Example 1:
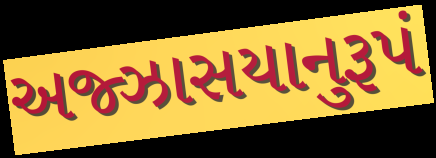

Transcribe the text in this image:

અજ્ઝાસયાનુરૂપં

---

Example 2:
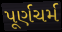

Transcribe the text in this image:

પૂર્ણચર્મ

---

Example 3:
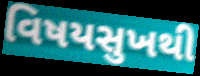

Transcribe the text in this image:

વિષયસુખથી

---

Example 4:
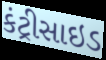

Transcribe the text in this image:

કંટ્રીસાઇડ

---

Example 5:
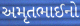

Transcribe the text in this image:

અમૃતભાઈનો